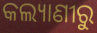
କଲ୍ୟାଣୀରୁ